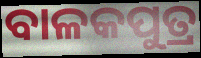
ବାଳକପୁତ୍ର